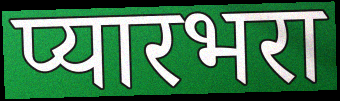
प्यारभरा